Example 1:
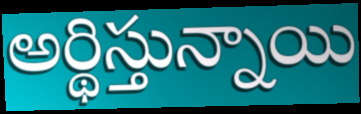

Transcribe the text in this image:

అర్థిస్తున్నాయి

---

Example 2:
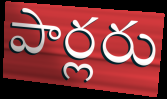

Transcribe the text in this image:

పార్లరు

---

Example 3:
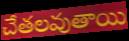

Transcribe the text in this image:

చేతలవుతాయి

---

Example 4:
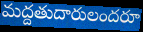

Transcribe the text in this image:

మద్దతుదారులందరూ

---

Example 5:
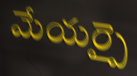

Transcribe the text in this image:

మేయర్పై